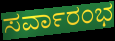
ಸರ್ವಾರಂಭ